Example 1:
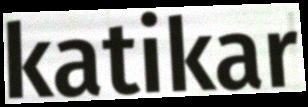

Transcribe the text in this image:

katikar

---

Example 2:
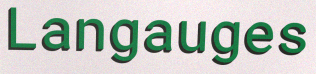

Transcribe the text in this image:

Langauges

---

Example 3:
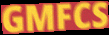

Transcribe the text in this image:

GMFCS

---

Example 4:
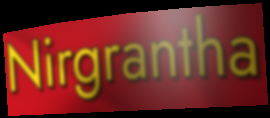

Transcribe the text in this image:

Nirgrantha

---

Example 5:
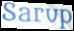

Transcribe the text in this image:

Sarup